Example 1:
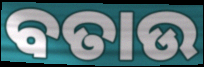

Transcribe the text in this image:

ବତାଉ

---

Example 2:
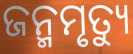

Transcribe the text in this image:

ଜନ୍ମମୃତ୍ୟୁ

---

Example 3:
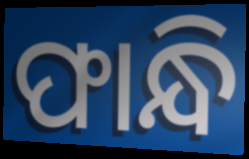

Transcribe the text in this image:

ଫାନ୍ଧି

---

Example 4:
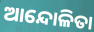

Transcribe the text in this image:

ଆନ୍ଦୋଳିତା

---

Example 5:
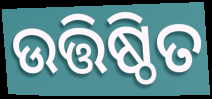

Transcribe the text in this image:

ଉତ୍ତିଷ୍ଠିତ